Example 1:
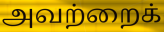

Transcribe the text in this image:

அவற்றைக்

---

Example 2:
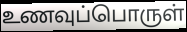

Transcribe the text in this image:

உணவுப்பொருள்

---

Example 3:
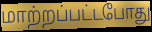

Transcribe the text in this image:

மாற்றப்பட்டபோது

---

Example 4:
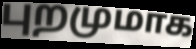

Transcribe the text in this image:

புறமுமாக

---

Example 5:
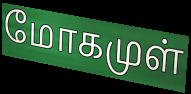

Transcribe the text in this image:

மோகமுள்